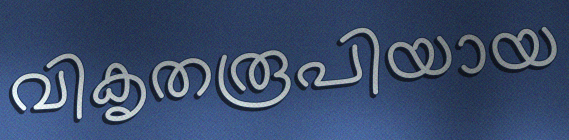
വികൃതരൂപിയായ